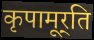
कृपामूर्ति